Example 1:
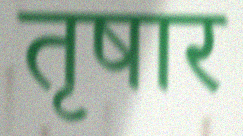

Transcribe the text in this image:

तृषार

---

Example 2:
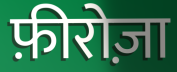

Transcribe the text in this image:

फ़ीरोज़ा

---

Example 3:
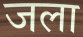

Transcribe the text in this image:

जला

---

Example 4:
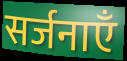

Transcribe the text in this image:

सर्जनाएँ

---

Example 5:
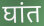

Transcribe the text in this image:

घांत